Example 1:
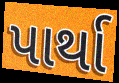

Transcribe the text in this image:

પાર્થા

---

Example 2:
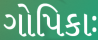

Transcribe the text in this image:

ગોપિકાઃ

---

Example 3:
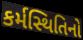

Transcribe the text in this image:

કર્મસ્થિતિનો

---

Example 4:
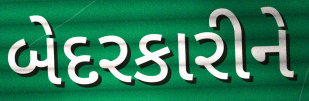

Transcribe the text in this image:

બેદરકારીને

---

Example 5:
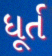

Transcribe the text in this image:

ધૂર્ત